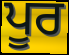
ਪੂਰ